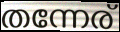
തന്നേര്